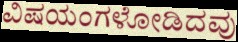
ವಿಷಯಂಗಳೋಡಿದವು